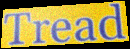
Tread